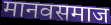
मानवसमाज